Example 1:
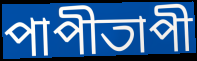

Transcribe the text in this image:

পাপীতাপী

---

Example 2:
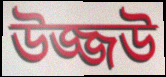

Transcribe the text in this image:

উজ্জউ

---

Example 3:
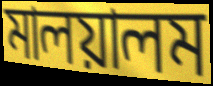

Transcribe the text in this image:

মালয়ালম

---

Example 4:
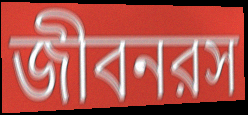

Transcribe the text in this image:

জীবনরস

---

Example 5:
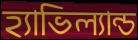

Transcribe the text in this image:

হ্যাভিল্যান্ড